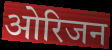
ओरिजन